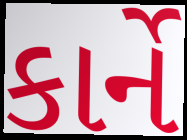
કાર્ને